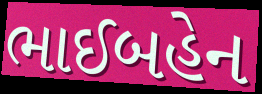
ભાઈબહેન